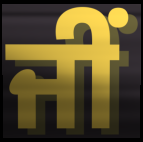
ਜੀਂ